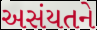
અસંયતને